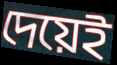
দেয়েই